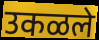
उकळले